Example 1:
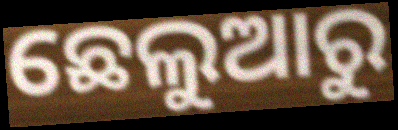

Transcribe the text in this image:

ଛେଲୁଆରୁ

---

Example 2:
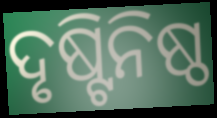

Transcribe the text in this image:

ଦୃଷ୍ଟିନିଷ୍ଠ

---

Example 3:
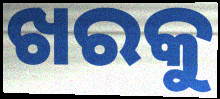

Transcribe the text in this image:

ଖରକୁ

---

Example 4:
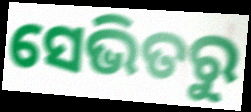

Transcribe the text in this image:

ସେଭିତରୁ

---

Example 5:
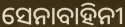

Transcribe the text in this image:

ସେନାବାହିନୀ